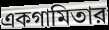
একগামিতার